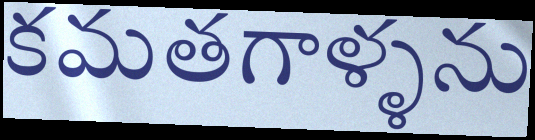
కమతగాళ్ళను